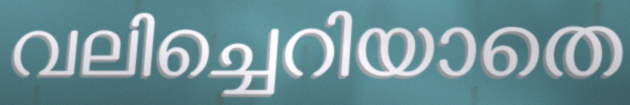
വലിച്ചെറിയാതെ